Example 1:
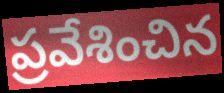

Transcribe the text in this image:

ప్రవేశించిన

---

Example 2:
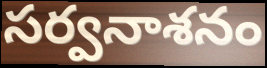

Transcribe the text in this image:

సర్వనాశనం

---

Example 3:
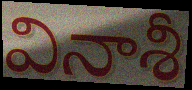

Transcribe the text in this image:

వినాశీ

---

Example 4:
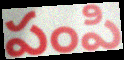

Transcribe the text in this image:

పంపి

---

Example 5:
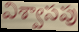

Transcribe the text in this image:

విశ్వాసపు